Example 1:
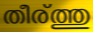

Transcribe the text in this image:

തീര്ത്തു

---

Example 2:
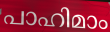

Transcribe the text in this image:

പാഹിമാം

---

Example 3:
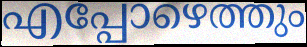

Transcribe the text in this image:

എപ്പോഴെത്തും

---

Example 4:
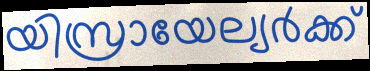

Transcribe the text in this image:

യിസ്രായേല്യർക്ക്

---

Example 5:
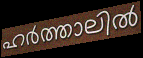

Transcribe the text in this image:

ഹർത്താലിൽ